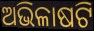
ଅଭିଳାଷଟି